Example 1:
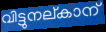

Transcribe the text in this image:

വിട്ടുനല്കാന്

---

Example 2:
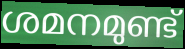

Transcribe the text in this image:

ശമനമുണ്ട്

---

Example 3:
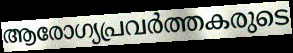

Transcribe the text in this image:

ആരോഗ്യപ്രവർത്തകരുടെ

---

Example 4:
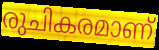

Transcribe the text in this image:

രുചികരമാണ്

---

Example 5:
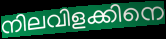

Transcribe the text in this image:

നിലവിളക്കിനെ